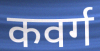
कवर्ग